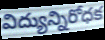
విద్యున్నిరోధక